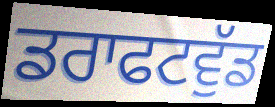
ਡਰਾਫਟਵੁੱਡ